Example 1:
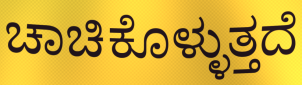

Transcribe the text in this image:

ಚಾಚಿಕೊಳ್ಳುತ್ತದೆ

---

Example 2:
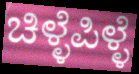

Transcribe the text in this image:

ಚಿಳ್ಳೆಪಿಳ್ಳೆ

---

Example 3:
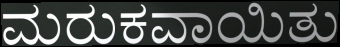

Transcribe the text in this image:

ಮರುಕವಾಯಿತು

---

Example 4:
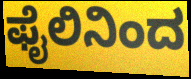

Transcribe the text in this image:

ಫೈಲಿನಿಂದ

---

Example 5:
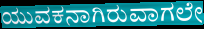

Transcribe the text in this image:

ಯುವಕನಾಗಿರುವಾಗಲೇ